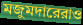
মজুমদারেরাও